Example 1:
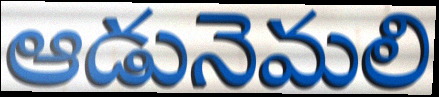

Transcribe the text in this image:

ఆడునెమలి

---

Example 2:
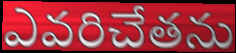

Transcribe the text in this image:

ఎవరిచేతను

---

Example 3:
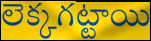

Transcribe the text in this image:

లెక్కగట్టాయి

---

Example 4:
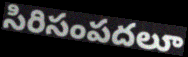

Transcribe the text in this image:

సిరిసంపదలూ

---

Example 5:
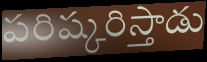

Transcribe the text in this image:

పరిష్కరిస్తాడు